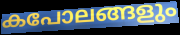
കപോലങ്ങളും